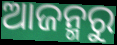
ଆଜନ୍ମରୁ